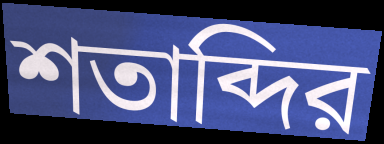
শতাব্দির